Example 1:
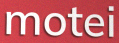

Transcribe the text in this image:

motei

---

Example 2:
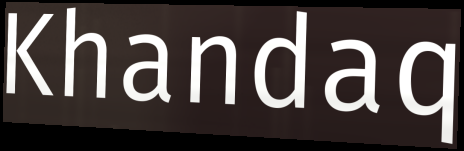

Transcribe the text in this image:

Khandaq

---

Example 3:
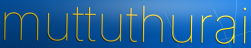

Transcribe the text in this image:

muttuthurai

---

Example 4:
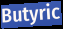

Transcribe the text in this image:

Butyric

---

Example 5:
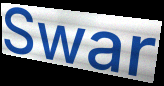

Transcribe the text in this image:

Swar